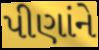
પીણાંને